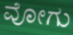
ವೋಗು